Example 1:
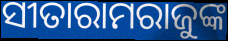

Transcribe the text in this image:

ସୀତାରାମରାଜୁଙ୍କ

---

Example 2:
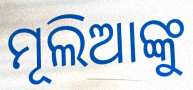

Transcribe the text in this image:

ମୂଲିଆଙ୍କୁ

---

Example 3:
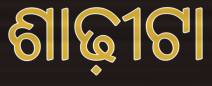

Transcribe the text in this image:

ଶାଢ଼ୀଟା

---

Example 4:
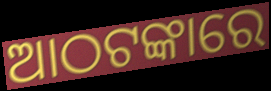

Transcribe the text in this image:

ଆଠଟଙ୍କାରେ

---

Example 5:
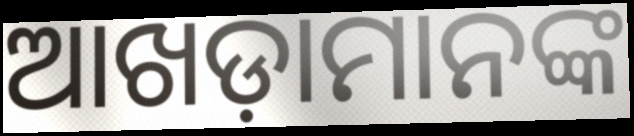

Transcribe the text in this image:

ଆଖଡ଼ାମାନଙ୍କ